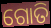
ଗୋତି